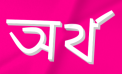
অর্থ